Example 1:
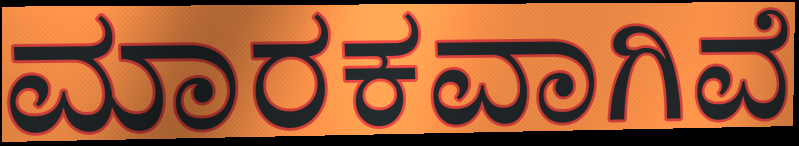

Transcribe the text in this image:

ಮಾರಕವಾಗಿವೆ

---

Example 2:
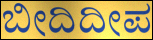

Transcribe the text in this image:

ಬೀದಿದೀಪ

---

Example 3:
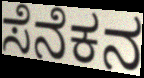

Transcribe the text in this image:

ಸೆನೆಕನ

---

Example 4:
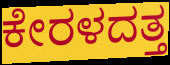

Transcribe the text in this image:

ಕೇರಳದತ್ತ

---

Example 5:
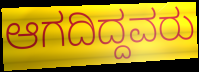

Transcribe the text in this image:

ಆಗದಿದ್ದವರು